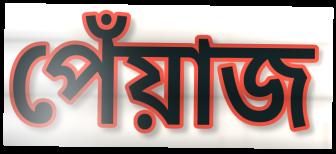
পেঁয়াজ